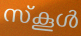
സ്‌കൂൾ